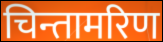
चिन्तामरिण